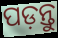
ପଡ଼ନ୍ତୁ